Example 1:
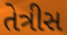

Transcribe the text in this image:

તેત્રીસ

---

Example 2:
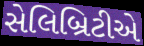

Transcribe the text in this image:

સેલિબ્રિટીએ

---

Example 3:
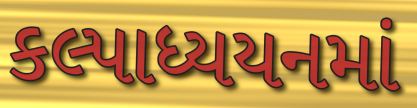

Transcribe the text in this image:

કલ્પાધ્યયનમાં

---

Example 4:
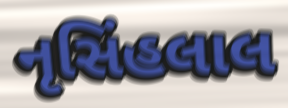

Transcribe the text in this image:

નૃસિંહલાલ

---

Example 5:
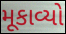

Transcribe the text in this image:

મૂકાવ્યો